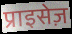
प्राइसेज़